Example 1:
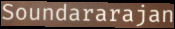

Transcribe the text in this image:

Soundararajan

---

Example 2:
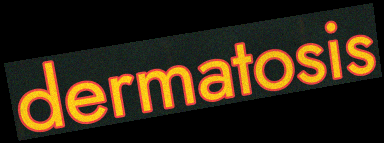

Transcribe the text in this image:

dermatosis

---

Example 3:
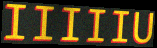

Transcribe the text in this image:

IIIIIU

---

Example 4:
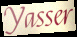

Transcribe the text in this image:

Yasser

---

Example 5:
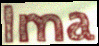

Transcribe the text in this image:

Ima